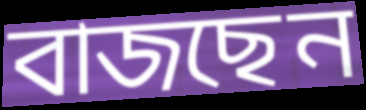
বাজছেন